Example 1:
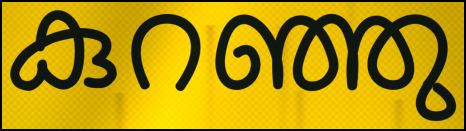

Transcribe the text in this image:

കുറഞ്ഞു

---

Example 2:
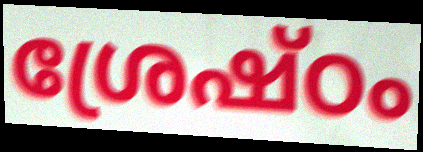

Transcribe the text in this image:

ശ്രേഷ്ഠം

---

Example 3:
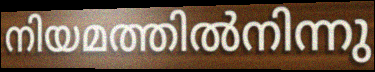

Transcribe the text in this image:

നിയമത്തിൽനിന്നു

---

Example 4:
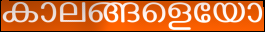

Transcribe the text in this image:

കാലങ്ങളെയോ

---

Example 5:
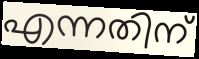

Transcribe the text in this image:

എന്നതിന്